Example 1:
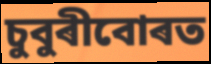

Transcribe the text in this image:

চুবুৰীবোৰত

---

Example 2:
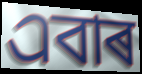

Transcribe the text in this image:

এবাৰ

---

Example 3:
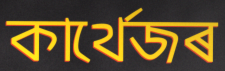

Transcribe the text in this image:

কাৰ্থেজৰ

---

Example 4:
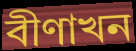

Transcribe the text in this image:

বীণাখন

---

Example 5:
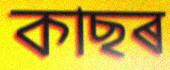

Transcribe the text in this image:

কাছৰ